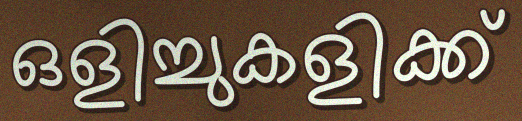
ഒളിച്ചുകളിക്ക്